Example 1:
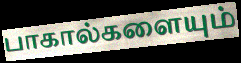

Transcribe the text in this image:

பாகால்களையும்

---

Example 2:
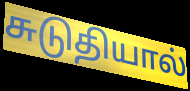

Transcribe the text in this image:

சுடுதியால்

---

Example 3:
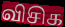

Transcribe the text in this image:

விசிக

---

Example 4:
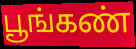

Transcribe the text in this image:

பூங்கண்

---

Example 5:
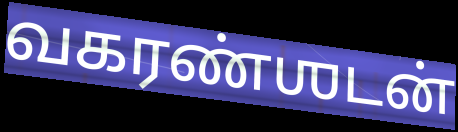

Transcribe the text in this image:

வகரண்ஶடன்